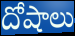
దోషాలు